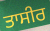
ਤਾਸੀਰ